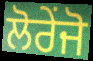
ਲੋਰੇਂਜੋ